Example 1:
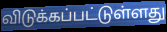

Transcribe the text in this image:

விடுக்கப்பட்டுள்ளது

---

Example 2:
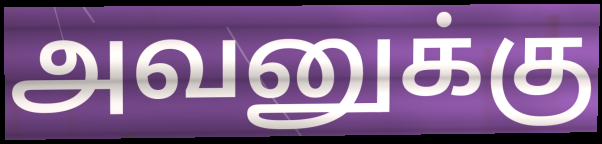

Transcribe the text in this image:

அவனுக்கு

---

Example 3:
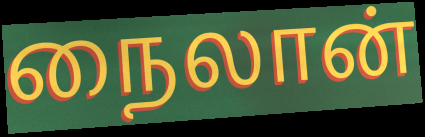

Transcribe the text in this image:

நைலான்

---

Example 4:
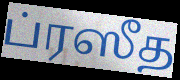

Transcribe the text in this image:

ப்ரஸீத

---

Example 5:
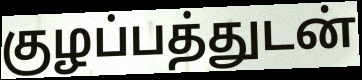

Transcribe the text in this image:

குழப்பத்துடன்